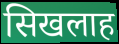
सिखलाह